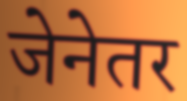
जेनेतर